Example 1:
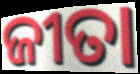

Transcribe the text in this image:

ଜୀତା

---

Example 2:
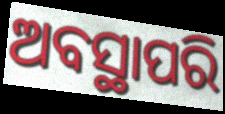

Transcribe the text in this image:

ଅବସ୍ଥାପରି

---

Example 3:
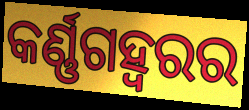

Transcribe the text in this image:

କର୍ଣ୍ଣଗହ୍ୱରର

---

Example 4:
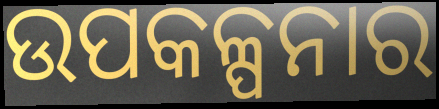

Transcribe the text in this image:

ଉପକଳ୍ପନାର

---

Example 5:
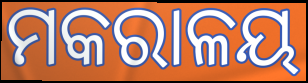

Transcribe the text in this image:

ମକରାଳୟ